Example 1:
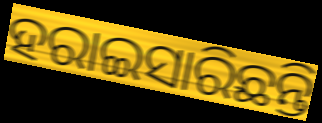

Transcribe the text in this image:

ହରାଇସାରିଛନ୍ତି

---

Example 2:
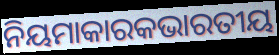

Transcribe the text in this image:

ନିୟମାକାରକଭାରତୀୟ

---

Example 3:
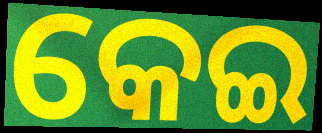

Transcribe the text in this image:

କେଇ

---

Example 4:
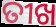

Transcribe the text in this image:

ତୀଖ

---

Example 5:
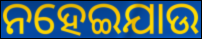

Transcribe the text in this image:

ନହେଇଯାଉ